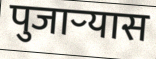
पुजाऱ्यास